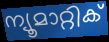
ന്യൂമാറ്റിക്